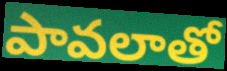
పావలాతో